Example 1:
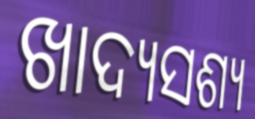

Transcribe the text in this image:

ଖାଦ୍ୟସଶ୍ୟ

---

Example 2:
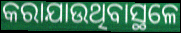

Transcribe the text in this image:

କରାଯାଉଥିବାସ୍ଥଳେ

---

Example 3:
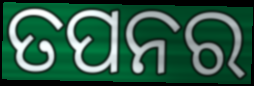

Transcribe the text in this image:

ତପନର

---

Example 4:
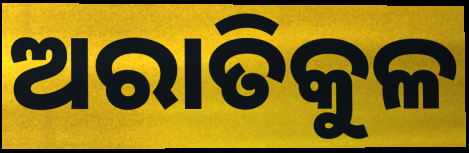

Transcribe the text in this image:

ଅରାତିକୁଳ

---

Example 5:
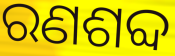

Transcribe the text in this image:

ରଣଶବ୍ଦ